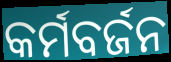
କର୍ମବର୍ଜନ